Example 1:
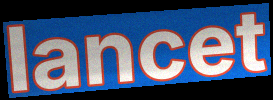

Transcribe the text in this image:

lancet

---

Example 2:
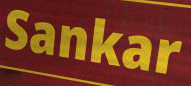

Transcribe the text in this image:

Sankar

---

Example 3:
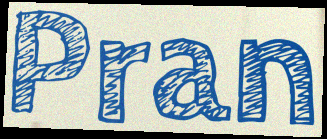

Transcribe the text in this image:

Pran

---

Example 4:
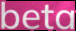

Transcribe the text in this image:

beta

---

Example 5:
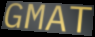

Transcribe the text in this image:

GMAT